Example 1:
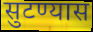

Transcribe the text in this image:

सुटण्यास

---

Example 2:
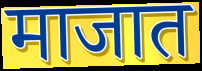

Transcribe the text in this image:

माजात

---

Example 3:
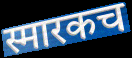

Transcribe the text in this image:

स्मारकच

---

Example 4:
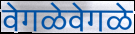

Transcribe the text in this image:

वेगळेवेगळे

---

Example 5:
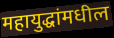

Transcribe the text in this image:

महायुद्धांमधील